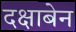
दक्षाबेन